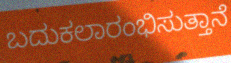
ಬದುಕಲಾರಂಭಿಸುತ್ತಾನೆ